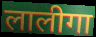
लालीगा